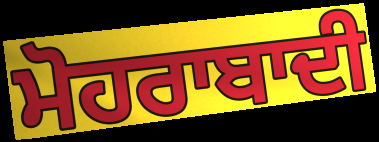
ਮੋਹਰਾਬਾਦੀ